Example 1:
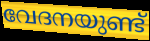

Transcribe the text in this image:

വേദനയുണ്ട്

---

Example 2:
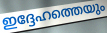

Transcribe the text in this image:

ഇദ്ദേഹത്തെയും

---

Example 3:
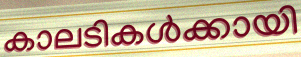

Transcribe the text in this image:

കാലടികൾക്കായി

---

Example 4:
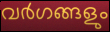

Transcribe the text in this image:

വർഗങ്ങളും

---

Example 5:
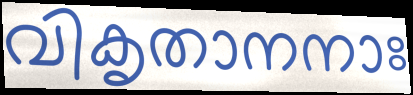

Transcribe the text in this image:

വികൃതാനനാഃ